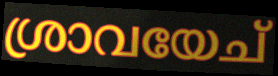
ശ്രാവയേച്